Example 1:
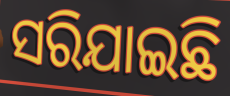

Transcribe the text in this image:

ସରିଯାଇଛି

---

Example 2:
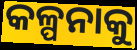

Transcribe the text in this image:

କଳ୍ପନାକୁ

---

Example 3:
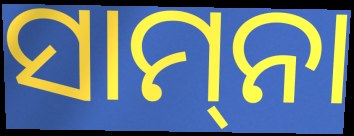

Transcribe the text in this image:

ସାମ୍‍ନା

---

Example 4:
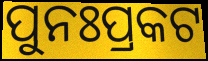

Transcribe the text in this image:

ପୁନଃପ୍ରକଟ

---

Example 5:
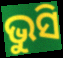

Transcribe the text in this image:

ଭୁସି